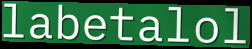
labetalol